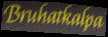
Bruhatkalpa